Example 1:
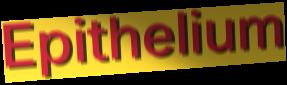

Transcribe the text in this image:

Epithelium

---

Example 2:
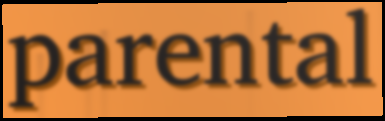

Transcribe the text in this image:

parental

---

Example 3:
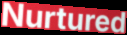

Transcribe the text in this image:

Nurtured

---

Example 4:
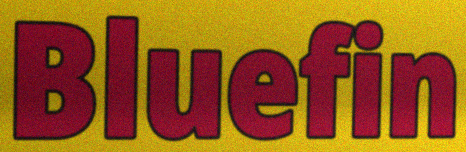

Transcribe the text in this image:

Bluefin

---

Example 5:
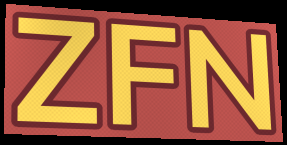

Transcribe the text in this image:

ZFN